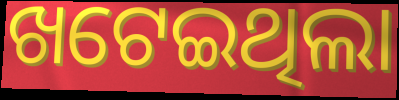
ଖଟେଇଥିଲା